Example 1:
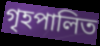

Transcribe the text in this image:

গৃহপালিত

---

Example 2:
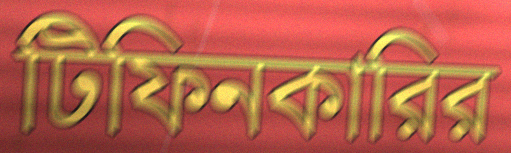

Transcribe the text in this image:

টিফিনকারির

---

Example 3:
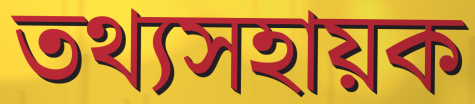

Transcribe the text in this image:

তথ্যসহায়ক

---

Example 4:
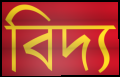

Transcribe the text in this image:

বিদ্য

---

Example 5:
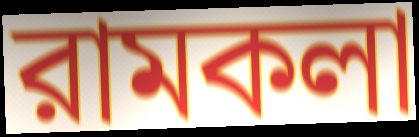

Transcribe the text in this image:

রামকলা